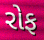
રોફ